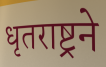
धृतराष्ट्रने